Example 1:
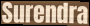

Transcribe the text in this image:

Surendra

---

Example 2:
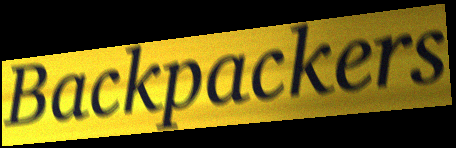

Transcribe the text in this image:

Backpackers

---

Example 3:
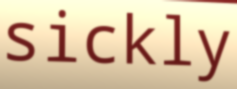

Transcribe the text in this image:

sickly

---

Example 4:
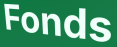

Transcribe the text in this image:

Fonds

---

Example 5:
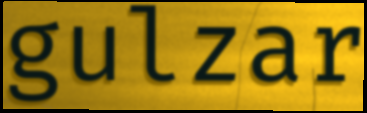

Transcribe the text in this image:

gulzar